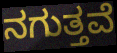
ನಗುತ್ತವೆ